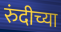
रुंदीच्या